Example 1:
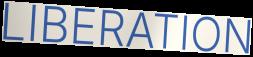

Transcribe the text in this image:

LIBERATION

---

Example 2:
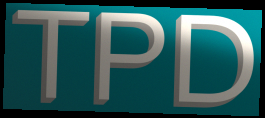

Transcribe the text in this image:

TPD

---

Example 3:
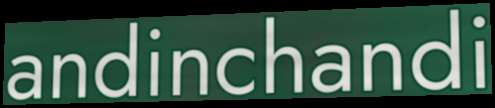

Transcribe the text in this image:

andinchandi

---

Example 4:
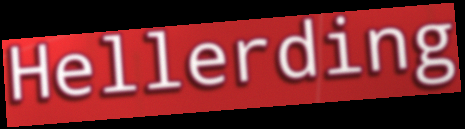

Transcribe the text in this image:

Hellerding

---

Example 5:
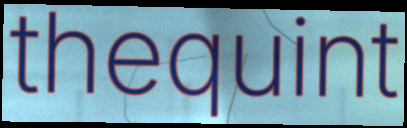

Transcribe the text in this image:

thequint